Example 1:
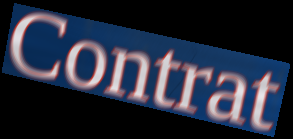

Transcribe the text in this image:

Contrat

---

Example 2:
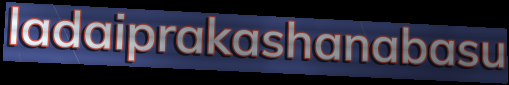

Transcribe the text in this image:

ladaiprakashanabasu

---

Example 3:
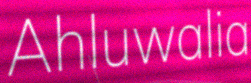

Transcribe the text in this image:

Ahluwalia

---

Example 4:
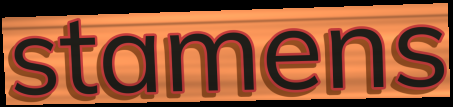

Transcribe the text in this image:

stamens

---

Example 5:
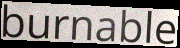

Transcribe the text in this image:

burnable